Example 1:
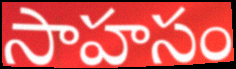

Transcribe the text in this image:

సాహసం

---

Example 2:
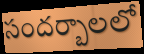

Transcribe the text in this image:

సందర్బాలలో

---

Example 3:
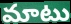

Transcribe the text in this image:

మాటు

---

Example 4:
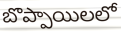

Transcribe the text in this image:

బొప్పాయిలలో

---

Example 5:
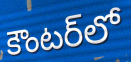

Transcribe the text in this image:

కౌంటర్‌లో